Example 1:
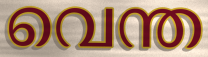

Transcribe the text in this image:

വെന്ത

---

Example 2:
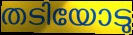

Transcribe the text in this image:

തടിയോടു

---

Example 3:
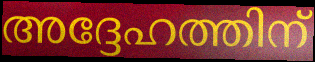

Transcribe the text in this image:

അദ്ദേഹത്തിന്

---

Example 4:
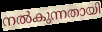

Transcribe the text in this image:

നൽകുന്നതായി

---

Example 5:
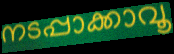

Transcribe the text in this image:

നടപ്പാക്കാവൂ